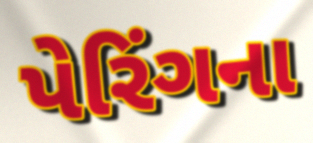
પેરિંગના